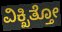
ವಿಕ್ಖಿತ್ತೋ